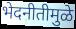
भेदनीतीमुळे